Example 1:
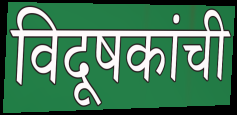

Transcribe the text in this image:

विदूषकांची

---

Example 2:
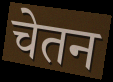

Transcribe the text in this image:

चेतन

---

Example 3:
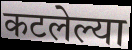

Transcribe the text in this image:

कटलेल्या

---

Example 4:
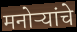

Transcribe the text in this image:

मनोऱ्यांचे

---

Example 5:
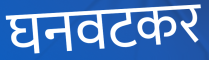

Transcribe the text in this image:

घनवटकर